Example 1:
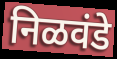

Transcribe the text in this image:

निळवंडे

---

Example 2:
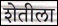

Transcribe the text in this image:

शेतीला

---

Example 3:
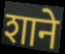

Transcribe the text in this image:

शाने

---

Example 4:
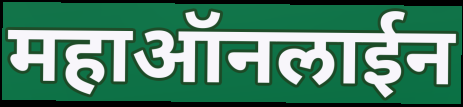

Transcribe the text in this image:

महाऑनलाईन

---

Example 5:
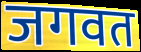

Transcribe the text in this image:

जगवत